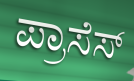
ಪ್ರಾಸೆಸ್